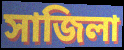
সাজিলা